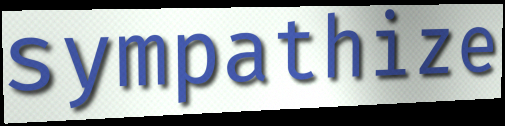
sympathize